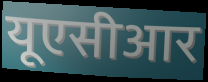
यूएसीआर